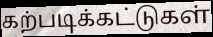
கற்படிக்கட்டுகள்